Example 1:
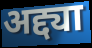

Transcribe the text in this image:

अद्द्या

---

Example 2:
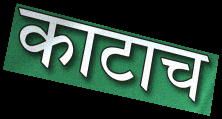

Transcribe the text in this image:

काटाच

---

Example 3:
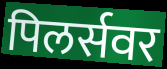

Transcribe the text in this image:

पिलर्सवर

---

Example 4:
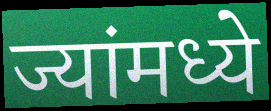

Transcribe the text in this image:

ज्यांमध्ये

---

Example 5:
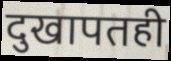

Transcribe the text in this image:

दुखापतही